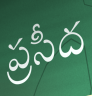
ప్రసీద